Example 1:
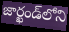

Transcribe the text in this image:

జార్ఖండ్‌లోని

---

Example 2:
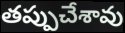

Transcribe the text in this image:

తప్పుచేశావు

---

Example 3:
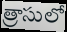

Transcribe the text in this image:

త్రాసులో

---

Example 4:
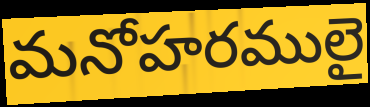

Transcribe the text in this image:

మనోహరములై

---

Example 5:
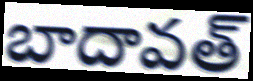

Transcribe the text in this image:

బాదావత్